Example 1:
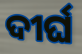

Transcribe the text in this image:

ଦୀର୍ଘ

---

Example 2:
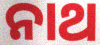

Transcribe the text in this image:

ନାଥ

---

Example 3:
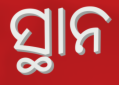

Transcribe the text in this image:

ସ୍ଥାନ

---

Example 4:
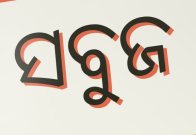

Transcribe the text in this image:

ସବୁଜ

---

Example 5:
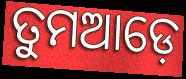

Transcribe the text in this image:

ତୁମଆଡ଼େ